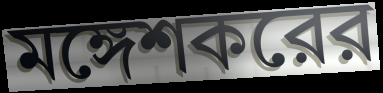
মঙ্গেশকরের